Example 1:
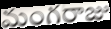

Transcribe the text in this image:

మంగరాజు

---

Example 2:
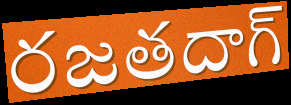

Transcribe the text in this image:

రజతదాగ్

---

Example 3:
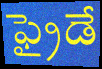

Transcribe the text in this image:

ఫ్రైడే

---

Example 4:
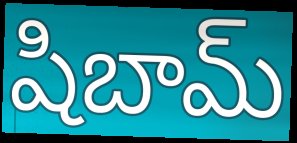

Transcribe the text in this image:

షిబామ్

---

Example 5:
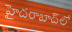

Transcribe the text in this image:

హైదరాబాద్‌లో